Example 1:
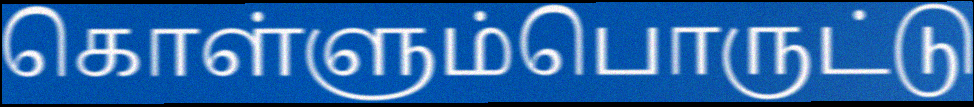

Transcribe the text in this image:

கொள்ளும்பொருட்டு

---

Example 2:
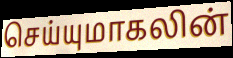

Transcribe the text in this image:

செய்யுமாகலின்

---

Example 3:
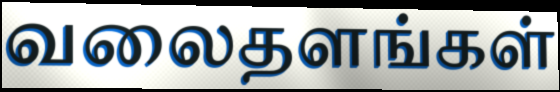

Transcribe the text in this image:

வலைதளங்கள்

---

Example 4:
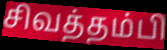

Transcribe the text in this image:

சிவத்தம்பி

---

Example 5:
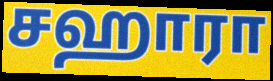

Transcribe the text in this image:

சஹாரா